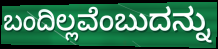
ಬಂದಿಲ್ಲವೆಂಬುದನ್ನು